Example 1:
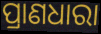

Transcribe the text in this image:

ପ୍ରାଣଧାରା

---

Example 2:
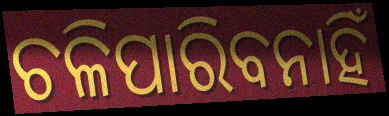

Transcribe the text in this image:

ଚଳିପାରିବନାହିଁ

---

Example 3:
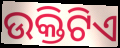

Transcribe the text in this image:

ଉକ୍ତିଟିଏ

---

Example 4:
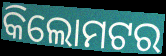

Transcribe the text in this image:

କିଲୋମଟର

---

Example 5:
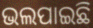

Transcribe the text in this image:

ଭଲପାଇଛି